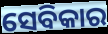
ସେବିକାର